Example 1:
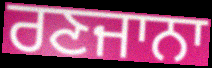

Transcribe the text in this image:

ਰਣਜਾਨਾ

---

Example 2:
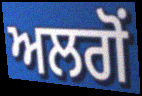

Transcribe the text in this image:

ਅਲਗੋਂ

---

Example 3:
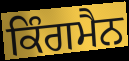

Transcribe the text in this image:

ਕਿੰਗਮੈਨ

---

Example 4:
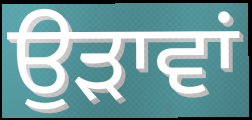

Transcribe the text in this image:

ਉੜਾਵਾਂ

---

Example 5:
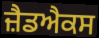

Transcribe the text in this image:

ਜ਼ੈਡਐਕਸ